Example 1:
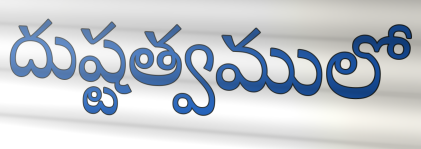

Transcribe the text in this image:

దుష్టత్వములో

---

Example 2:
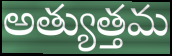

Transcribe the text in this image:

అత్యుత్తమ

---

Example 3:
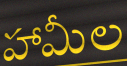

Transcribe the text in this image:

హామీల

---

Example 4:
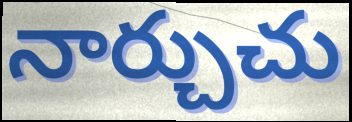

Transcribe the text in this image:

నార్చుచు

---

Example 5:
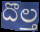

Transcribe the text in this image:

దొల్త